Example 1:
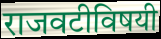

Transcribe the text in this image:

राजवटीविषयी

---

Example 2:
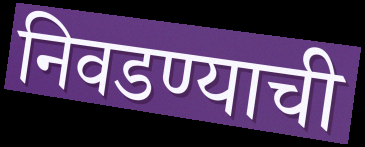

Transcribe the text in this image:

निवडण्याची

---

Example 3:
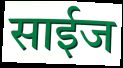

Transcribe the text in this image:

साईज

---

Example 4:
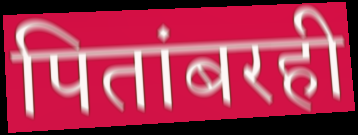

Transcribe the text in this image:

पितांबरही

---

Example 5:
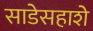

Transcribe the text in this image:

साडेसहाशे